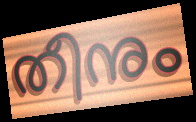
തീനും